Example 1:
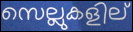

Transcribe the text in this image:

സെല്ലുകളില്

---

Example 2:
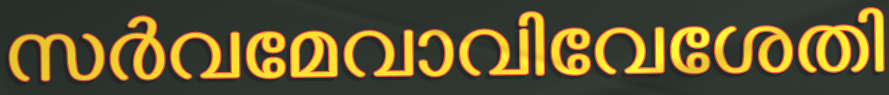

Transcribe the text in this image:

സർവമേവാവിവേശേതി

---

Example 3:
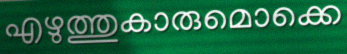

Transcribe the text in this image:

എഴുത്തുകാരുമൊക്കെ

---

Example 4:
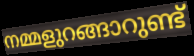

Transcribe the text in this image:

നമ്മളുറങ്ങാറുണ്ട്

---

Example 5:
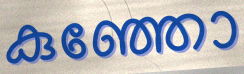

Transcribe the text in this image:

കുഞ്ഞോ